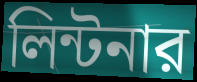
লিন্টনার